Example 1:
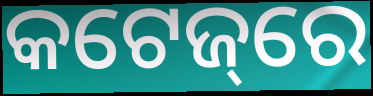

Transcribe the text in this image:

କଟେଜ୍‌ରେ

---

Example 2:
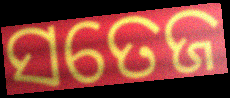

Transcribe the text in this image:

ସତେଜ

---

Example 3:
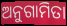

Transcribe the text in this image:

ଅନୁଗାମିତା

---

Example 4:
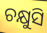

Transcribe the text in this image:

ଚକ୍ଷୁସି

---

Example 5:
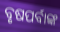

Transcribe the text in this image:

ବୃଷପର୍ବାଙ୍କ